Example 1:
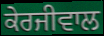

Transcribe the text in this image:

ਕੇਰਜੀਵਾਲ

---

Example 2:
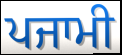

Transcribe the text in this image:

ਪਜਾਮੀ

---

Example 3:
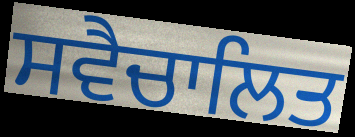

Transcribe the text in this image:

ਸਵੈਚਾਲਿਤ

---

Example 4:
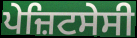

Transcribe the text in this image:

ਪੇਜ਼ਿਟਸੇਸੀ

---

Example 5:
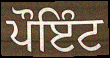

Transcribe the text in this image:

ਪੌਇੰਟ